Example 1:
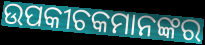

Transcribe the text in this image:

ଉପକୀଚକମାନଙ୍କର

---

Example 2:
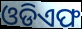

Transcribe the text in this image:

ଓଡିଏଫ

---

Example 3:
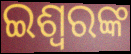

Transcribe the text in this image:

ଇଶ୍ୱରଙ୍କ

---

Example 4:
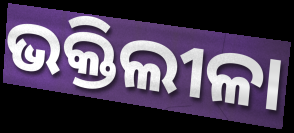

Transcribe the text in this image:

ଭକ୍ତିଲୀଳା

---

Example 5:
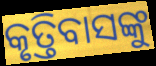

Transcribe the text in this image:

କୃତ୍ତିବାସଙ୍କୁ